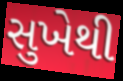
સુખેથી